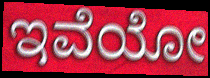
ಇವೆಯೋ